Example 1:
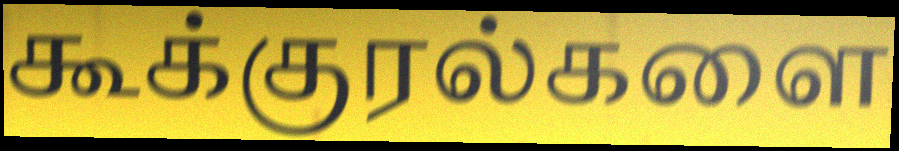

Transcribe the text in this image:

கூக்குரல்களை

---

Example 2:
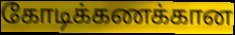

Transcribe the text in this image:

கோடிக்கணக்கான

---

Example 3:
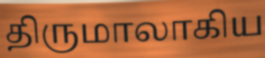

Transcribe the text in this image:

திருமாலாகிய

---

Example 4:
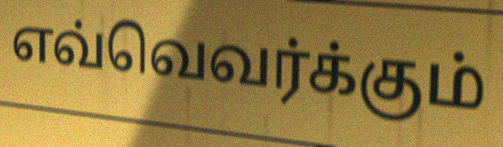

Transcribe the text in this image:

எவ்வெவர்க்கும்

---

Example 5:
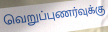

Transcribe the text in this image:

வெறுப்புணர்வுக்கு